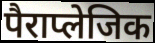
पैराप्लेजिक